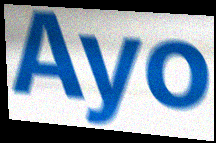
Ayo